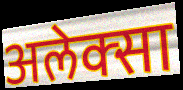
अलेक्‍सा